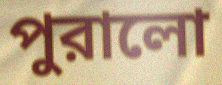
পুরালো